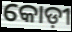
କୋଡ଼ୀ